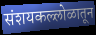
संशयकल्लोळातून